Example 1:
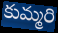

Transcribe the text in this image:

కుమ్మరి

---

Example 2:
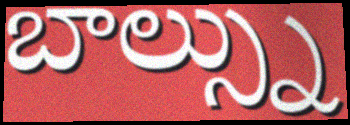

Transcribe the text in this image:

బాల్స్ను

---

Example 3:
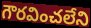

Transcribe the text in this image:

గౌరవించలేని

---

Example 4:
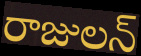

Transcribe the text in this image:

రాజులన్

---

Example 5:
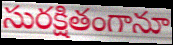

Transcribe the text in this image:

సురక్షితంగానూ